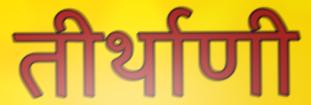
तीर्थाणी